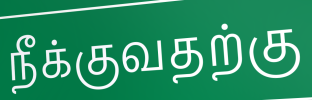
நீக்குவதற்கு